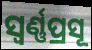
ସ୍ବର୍ଣ୍ଣପ୍ରସୂ